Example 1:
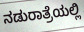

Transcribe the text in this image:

ನಡುರಾತ್ರೆಯಲ್ಲಿ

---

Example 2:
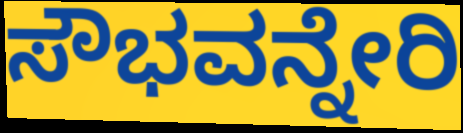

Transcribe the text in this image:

ಸೌಭವನ್ನೇರಿ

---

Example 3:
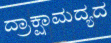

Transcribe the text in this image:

ದ್ರಾಕ್ಷಾಮದ್ಯದ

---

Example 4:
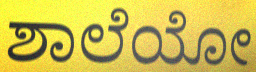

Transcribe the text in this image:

ಶಾಲೆಯೋ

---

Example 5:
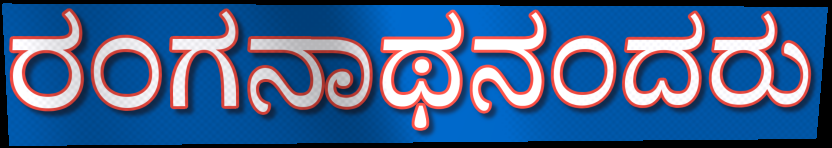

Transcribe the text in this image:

ರಂಗನಾಥನಂದರು